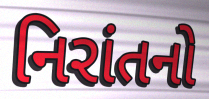
નિરાંતનો